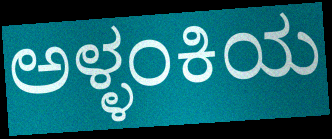
ಅಳ್ಳಂಕಿಯ